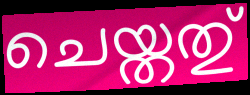
ചെയ്തതു്